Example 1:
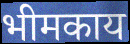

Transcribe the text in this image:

भीमकाय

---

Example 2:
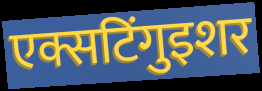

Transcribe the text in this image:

एक्सटिंगुइशर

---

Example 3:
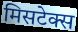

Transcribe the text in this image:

मिसटेक्स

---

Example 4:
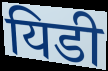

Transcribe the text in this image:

यिडी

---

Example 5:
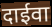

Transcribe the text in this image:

दाईवा